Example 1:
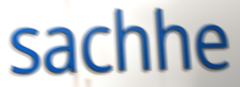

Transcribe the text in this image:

sachhe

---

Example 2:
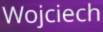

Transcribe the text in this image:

Wojciech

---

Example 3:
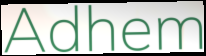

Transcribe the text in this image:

Adhem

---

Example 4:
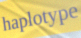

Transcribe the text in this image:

haplotype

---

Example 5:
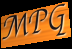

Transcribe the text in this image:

MPG